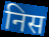
निस